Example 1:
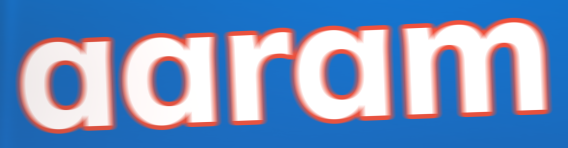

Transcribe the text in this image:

aaram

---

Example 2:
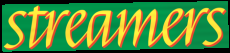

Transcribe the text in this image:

streamers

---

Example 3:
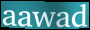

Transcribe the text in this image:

aawad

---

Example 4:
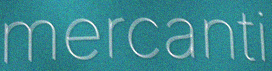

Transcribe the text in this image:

mercanti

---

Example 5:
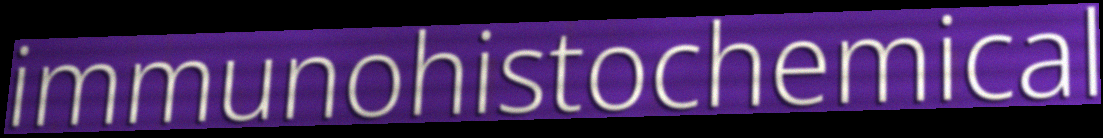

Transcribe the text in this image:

immunohistochemical